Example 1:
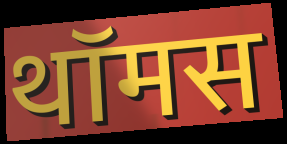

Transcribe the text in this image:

थॉमस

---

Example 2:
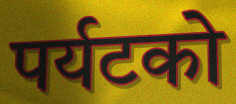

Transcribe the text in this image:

पर्यटको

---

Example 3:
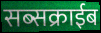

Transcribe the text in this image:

सब्सक्राईब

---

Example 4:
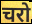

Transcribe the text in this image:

चरो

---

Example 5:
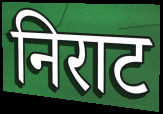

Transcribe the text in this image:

निराट